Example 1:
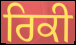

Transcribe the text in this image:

ਰਿਕੀ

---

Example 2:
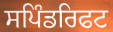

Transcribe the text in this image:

ਸਪਿੰਡਰਿਫਟ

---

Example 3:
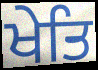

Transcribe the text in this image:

ਖੇਤਿ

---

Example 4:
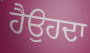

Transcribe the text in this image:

ਹੈਉਹਦਾ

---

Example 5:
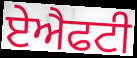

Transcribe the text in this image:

ਏਐਫਟੀ